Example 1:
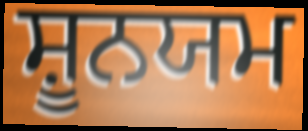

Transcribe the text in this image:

ਸ਼ੂਨਯਮ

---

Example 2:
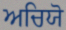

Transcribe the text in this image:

ਅਚਿਯੋ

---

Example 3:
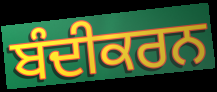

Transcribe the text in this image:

ਬੰਦੀਕਰਨ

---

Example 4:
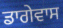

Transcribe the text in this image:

ਡਾਗੇਵਾਸ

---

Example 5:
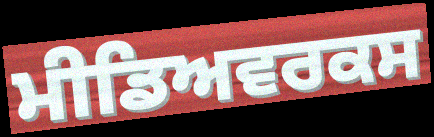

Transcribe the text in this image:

ਮੀਡਿਅਵਰਕਸ